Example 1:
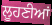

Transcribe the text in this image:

ਲੂਹਣੀਆਂ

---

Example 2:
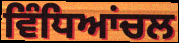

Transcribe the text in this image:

ਵਿੰਧਿਆਂਚਲ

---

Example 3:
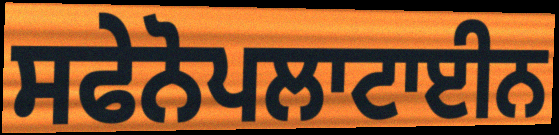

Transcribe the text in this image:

ਸਫੇਨੋਪਲਾਟਾਈਨ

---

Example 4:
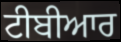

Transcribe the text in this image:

ਟੀਬੀਆਰ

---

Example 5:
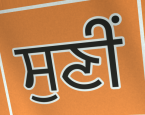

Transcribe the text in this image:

ਸੁਣੀਂ